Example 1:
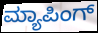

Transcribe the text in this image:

ಮ್ಯಾಪಿಂಗ್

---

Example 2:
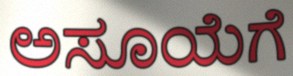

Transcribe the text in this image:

ಅಸೂಯೆಗೆ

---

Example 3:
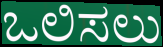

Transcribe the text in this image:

ಒಲಿಸಲು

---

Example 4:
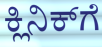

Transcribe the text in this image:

ಕ್ಲಿನಿಕ್‍ಗೆ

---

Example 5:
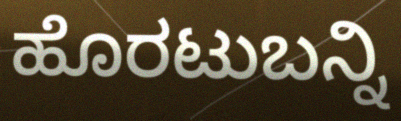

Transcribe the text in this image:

ಹೊರಟುಬನ್ನಿ